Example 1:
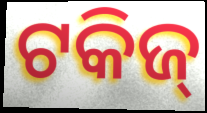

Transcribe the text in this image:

ଟକିଜ୍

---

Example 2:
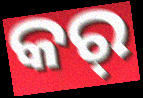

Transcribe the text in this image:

କର୍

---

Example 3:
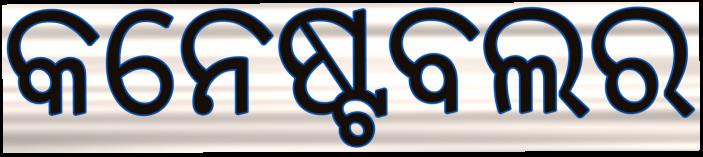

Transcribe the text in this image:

କନେଷ୍ଟବଲର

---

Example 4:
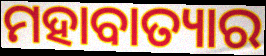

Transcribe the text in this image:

ମହାବାତ୍ୟାର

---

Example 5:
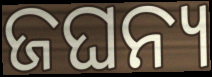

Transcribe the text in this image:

ଜଘନ୍ଯ